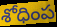
శోధింప